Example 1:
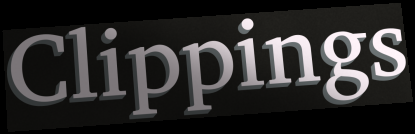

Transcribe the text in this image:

Clippings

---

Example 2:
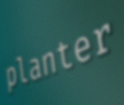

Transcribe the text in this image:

planter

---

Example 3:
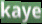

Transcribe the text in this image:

kaye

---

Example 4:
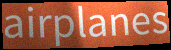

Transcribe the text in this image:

airplanes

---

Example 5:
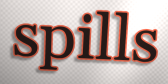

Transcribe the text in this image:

spills